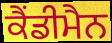
ਕੈਂਡੀਮੈਨ